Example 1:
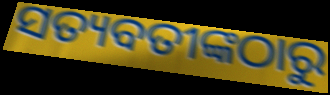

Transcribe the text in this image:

ସତ୍ୟବତୀଙ୍କଠାରୁ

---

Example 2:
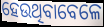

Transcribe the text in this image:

ହେଉଥିବାବେଳେ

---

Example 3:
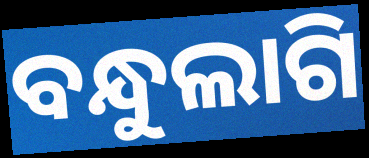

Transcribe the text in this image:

ବନ୍ଧୁଲାଗି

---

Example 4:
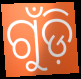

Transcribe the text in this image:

ଗୁଁଡ଼ି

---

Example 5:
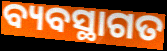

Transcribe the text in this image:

ବ୍ୟବସ୍ଥାଗତ